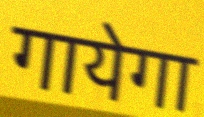
गायेगा